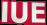
IUE